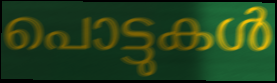
പൊട്ടുകൾ